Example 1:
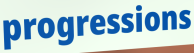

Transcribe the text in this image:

progressions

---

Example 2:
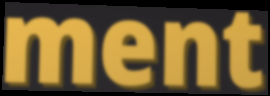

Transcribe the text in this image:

ment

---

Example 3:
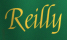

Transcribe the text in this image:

Reilly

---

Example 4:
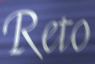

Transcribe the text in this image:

Reto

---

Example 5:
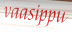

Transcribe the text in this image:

vaasippu